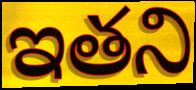
ఇతని